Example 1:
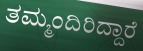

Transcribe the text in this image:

ತಮ್ಮಂದಿರಿದ್ದಾರೆ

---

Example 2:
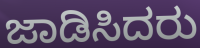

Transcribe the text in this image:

ಜಾಡಿಸಿದರು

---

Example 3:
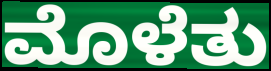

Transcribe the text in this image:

ಮೊಳೆತು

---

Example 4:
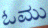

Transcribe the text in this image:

ಓಮು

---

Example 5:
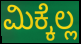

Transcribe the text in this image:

ಮಿಕ್ಕೆಲ್ಲ